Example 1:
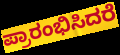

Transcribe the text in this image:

ಪ್ರಾರಂಭಿಸಿದರೆ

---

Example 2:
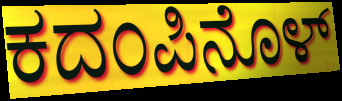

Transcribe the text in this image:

ಕದಂಪಿನೊಳ್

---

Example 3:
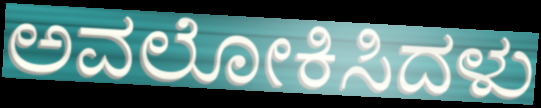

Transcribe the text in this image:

ಅವಲೋಕಿಸಿದಳು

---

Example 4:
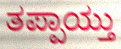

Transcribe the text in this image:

ತಪ್ಪಾಯ್ತು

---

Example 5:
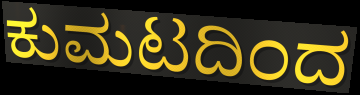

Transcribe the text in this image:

ಕುಮಟದಿಂದ